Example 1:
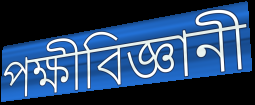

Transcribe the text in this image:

পক্ষীবিজ্ঞানী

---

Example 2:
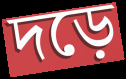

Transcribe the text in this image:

দড়ে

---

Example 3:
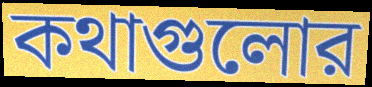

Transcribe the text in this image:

কথাগুলোর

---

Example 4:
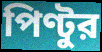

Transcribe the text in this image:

পিণ্টুর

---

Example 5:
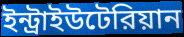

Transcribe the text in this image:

ইন্ট্রাইউটেরিয়ান